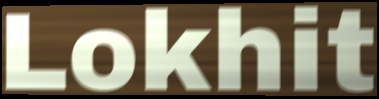
Lokhit